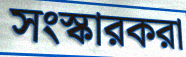
সংস্কারকরা